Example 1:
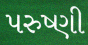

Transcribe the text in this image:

પરુષ્ણી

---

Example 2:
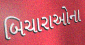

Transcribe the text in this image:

બિચારાઓના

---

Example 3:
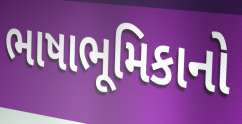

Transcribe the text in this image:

ભાષાભૂમિકાનો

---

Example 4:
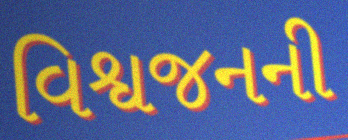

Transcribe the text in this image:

વિશ્વજનની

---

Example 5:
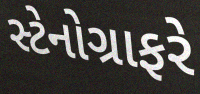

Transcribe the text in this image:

સ્ટેનોગ્રાફરે